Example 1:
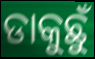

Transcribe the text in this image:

ଡାକୁଛୁଁ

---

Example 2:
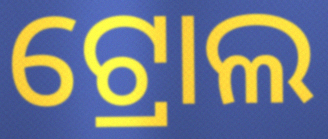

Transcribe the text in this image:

ଟ୍ରୋଲ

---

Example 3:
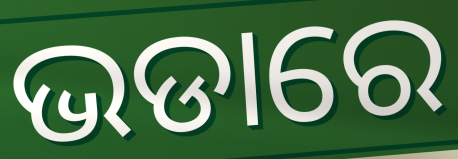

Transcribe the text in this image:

ଭଡାରେ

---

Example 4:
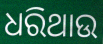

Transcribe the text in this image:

ଧରିଥାଉ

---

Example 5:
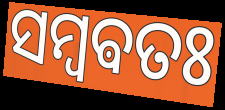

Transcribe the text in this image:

ସମ୍ବଵତଃ